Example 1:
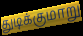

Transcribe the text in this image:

துடிக்குமாறு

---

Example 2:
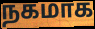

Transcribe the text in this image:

நகமாக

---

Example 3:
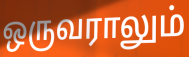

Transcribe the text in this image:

ஒருவராலும்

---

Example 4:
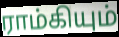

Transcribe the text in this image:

ராம்கியும்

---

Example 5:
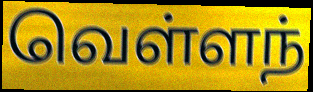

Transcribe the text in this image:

வெள்ளந்